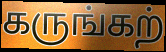
கருங்கற்